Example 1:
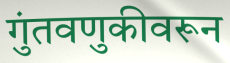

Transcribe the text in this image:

गुंतवणुकीवरून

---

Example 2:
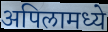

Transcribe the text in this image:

अपिलामध्ये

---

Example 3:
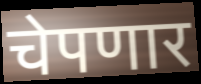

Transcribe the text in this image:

चेपणार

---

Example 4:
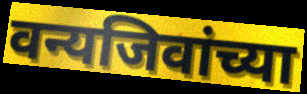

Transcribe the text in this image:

वन्यजिवांच्या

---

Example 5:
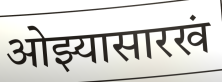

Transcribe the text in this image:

ओझ्यासारखं